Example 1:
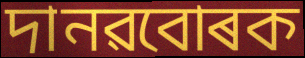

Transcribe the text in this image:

দানৱবোৰক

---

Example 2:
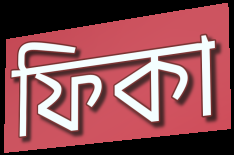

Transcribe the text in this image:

ফিকা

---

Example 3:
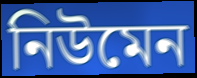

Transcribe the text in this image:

নিউমেন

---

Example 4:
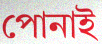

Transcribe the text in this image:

পোনাই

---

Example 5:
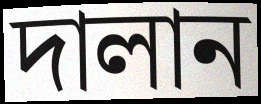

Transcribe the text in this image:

দালান